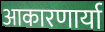
आकारणार्या